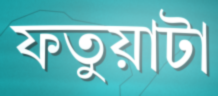
ফতুয়াটা